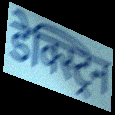
डेक्स्ट्रिन